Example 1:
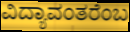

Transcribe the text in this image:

ವಿದ್ಯಾವಂತರೆಂಬ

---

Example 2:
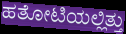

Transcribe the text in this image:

ಹತೋಟಿಯಲ್ಲಿತ್ತು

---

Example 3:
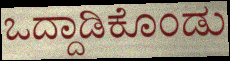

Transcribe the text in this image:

ಒದ್ದಾಡಿಕೊಂಡು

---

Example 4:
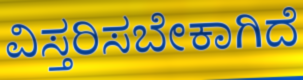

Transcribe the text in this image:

ವಿಸ್ತರಿಸಬೇಕಾಗಿದೆ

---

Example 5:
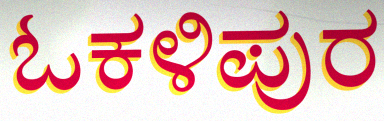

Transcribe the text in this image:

ಓಕಳಿಪುರ